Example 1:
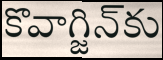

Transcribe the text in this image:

కొవాగ్జిన్‌కు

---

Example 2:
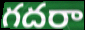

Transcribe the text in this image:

గదరా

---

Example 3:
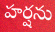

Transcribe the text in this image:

హర్షను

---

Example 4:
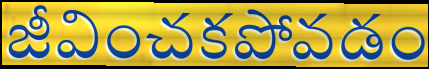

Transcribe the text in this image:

జీవించకపోవడం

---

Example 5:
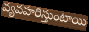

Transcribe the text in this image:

వ్యవహరిస్తుంటాయి